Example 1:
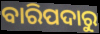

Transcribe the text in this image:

ବାରିପଦାରୁ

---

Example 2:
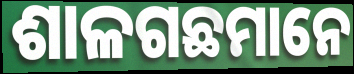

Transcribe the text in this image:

ଶାଳଗଛମାନେ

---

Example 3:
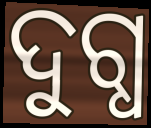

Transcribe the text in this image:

ଦୁଗ୍ଧ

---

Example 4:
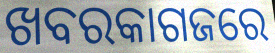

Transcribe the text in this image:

ଖବରକାଗଜରେ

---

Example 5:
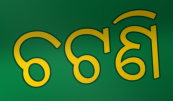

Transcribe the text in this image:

ଚଟଣି